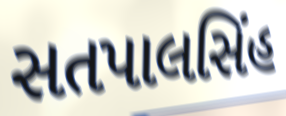
સતપાલસિંહ